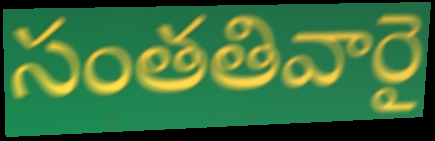
సంతతివారై